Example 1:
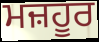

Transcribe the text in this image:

ਮਜ਼ਹੂਰ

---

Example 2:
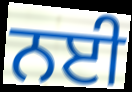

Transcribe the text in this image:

ਨਈ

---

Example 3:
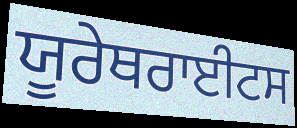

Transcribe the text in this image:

ਯੂਰੇਥਰਾਈਟਸ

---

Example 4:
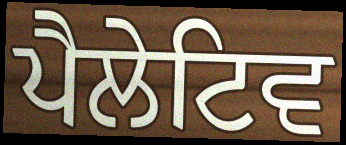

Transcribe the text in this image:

ਪੈਲੇਟਿਵ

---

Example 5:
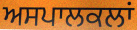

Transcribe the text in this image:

ਅਸਪਾਲਕਲਾਂ